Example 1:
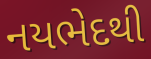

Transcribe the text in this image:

નયભેદથી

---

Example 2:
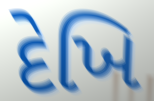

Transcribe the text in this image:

દેખિ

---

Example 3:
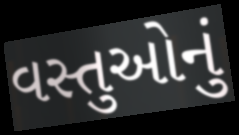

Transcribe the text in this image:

વસ્તુઓનું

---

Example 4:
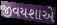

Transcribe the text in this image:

જીવયશાએ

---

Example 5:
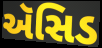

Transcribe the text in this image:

ઍસિડ